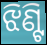
ଝିଣ୍ଟି